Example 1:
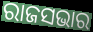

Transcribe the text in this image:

ରାଜସଭାର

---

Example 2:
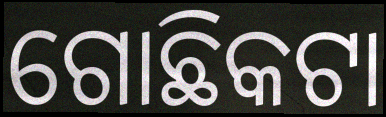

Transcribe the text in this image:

ଗୋଛିକଟା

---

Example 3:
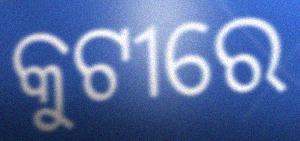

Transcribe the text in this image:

କୁଟୀରେ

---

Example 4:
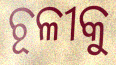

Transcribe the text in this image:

ଚୂଳୀକୁ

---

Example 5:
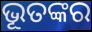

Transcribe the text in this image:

ଭୂତଙ୍କର